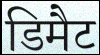
डिमैट